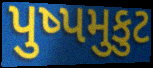
પુષ્પમુકુટ